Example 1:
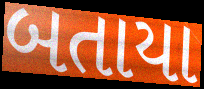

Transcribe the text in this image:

બતાયા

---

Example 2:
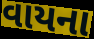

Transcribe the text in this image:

વાયના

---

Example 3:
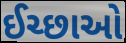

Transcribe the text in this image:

ઈચ્છાઓ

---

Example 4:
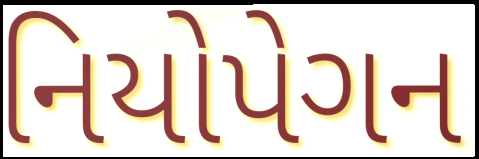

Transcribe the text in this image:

નિયોપેગન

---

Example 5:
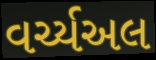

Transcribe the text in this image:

વર્ચ્યઅલ